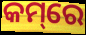
କମ୍‌ରେ